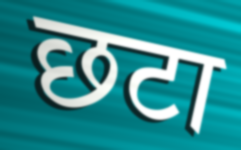
छटा